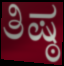
ತಿಷ್ಠ